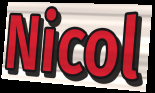
Nicol